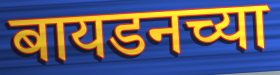
बायडनच्या